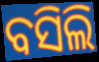
ବସିଲି